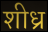
शीध्र